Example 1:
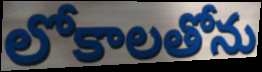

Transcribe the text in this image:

లోకాలతోను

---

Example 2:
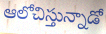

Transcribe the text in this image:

ఆలోచిస్తున్నాడో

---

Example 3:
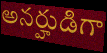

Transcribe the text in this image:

అనర్హుడిగా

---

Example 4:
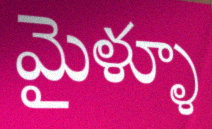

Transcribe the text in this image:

మైళ్ళూ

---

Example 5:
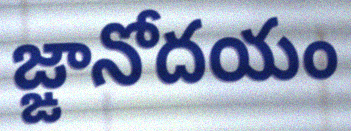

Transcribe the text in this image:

జ్ఙానోదయం